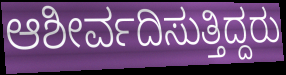
ಆಶೀರ್ವದಿಸುತ್ತಿದ್ದರು